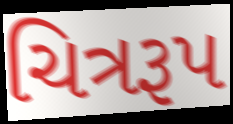
ચિત્રરૂપ